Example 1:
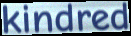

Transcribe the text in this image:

kindred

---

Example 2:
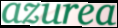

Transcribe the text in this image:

azurea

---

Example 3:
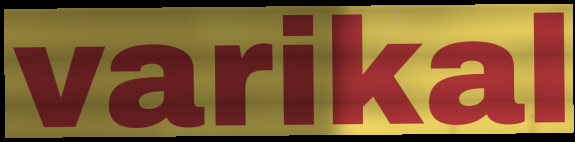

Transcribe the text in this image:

varikal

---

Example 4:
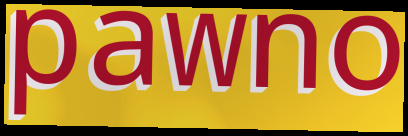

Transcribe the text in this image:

pawno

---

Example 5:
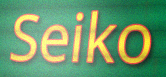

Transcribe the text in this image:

Seiko